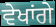
ਵੇਖਾਂਗੇ